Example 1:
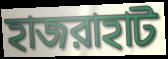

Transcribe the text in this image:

হাজরাহাট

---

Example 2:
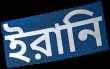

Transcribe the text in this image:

ইরানি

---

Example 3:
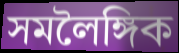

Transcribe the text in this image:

সমলৈঙ্গিক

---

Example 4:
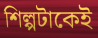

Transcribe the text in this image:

শিল্পটাকেই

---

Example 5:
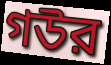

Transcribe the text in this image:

গউর